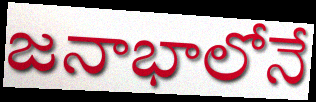
జనాభాలోనే